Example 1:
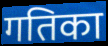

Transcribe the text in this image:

गतिका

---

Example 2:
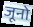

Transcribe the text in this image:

जूनो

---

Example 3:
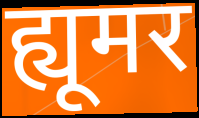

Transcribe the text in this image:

ह्यूमर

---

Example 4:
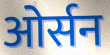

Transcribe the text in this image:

ओर्सन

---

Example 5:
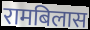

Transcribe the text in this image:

रामबिलास